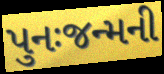
પુનઃજન્મની